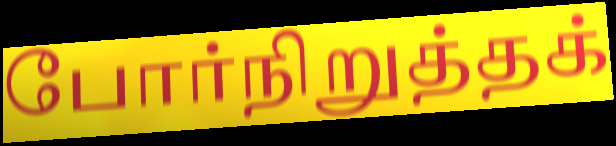
போர்நிறுத்தக்